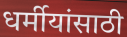
धर्मीयांसाठी